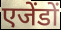
एजेंडों